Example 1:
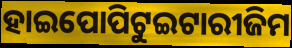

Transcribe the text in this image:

ହାଇପୋପିଟୁଇଟାରୀଜିମ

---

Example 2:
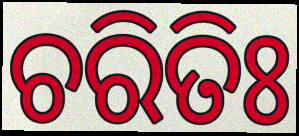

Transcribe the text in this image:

ଚରିତିଃ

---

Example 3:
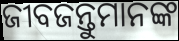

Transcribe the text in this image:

ଜୀବଜନ୍ତୁମାନଙ୍କ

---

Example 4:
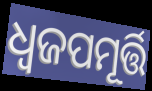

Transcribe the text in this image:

ଧ୍ୱଜପମୂର୍ତ୍ତି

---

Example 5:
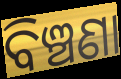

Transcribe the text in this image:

ବିଞ୍ଚଣା